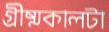
গ্রীষ্মকালটা